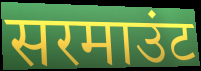
सरमाउंट